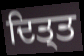
ਦਿਤ੍ਤ